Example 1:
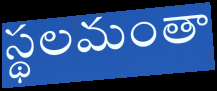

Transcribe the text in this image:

స్థలమంతా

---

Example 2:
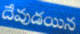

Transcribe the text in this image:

దేవుడయిన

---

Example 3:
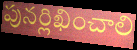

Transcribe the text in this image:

పునర్లిఖించాలి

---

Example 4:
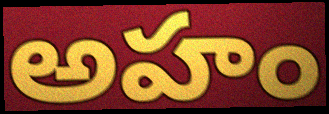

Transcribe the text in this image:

అహం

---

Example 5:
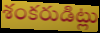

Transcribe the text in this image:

శంకరుడిట్లు